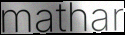
mathar